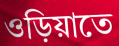
ওড়িয়াতে